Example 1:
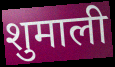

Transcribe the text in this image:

शुमाली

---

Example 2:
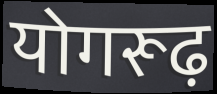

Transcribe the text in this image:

योगरूढ़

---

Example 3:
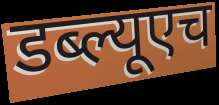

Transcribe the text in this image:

डब्ल्यूएच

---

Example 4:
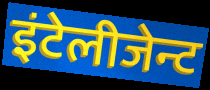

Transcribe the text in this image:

इंटेलीजेन्ट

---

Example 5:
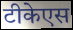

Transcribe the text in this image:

टीकेएस